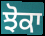
ਝੋਕਾ